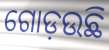
ଗୋଡ଼ଉଛି